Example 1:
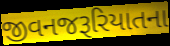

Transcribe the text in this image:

જીવનજરૂરિયાતના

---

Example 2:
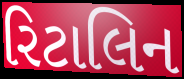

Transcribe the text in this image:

રિટાલિન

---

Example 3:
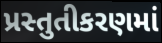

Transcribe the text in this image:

પ્રસ્તુતીકરણમાં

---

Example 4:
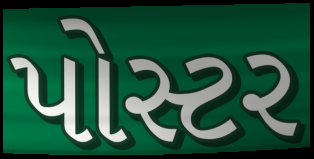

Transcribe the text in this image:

પોસ્ટર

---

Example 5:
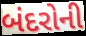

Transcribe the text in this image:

બંદરોની